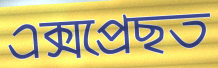
এক্সপ্ৰেছত